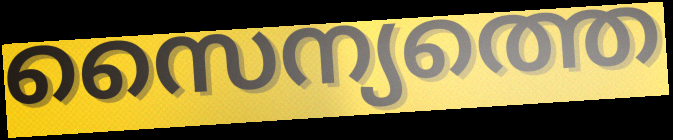
സൈന്യത്തെ